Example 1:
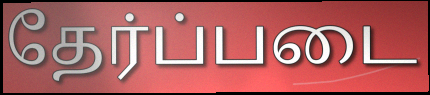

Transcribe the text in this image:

தேர்ப்படை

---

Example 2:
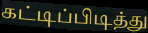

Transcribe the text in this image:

கட்டிப்பிடித்து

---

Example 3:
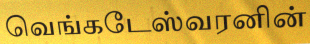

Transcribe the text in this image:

வெங்கடேஸ்வரனின்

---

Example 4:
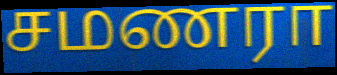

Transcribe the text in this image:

சமணரா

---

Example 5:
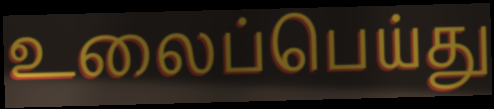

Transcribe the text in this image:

உலைப்பெய்து